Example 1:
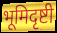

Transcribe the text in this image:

भूमिदृष्टी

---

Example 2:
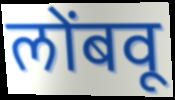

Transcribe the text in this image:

लोंबवू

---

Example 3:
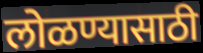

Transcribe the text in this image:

लोळण्यासाठी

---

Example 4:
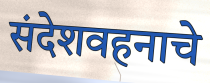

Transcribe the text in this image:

संदेशवहनाचे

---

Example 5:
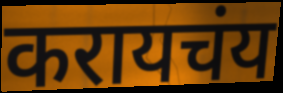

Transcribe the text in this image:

करायचंय